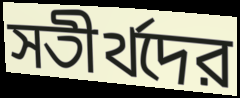
সতীর্থদের